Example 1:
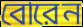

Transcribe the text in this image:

বোরেন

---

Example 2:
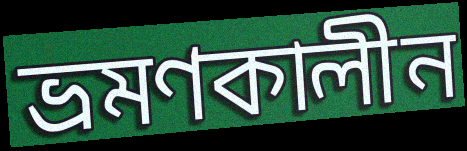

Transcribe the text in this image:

ভ্রমণকালীন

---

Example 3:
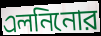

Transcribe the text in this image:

এলনিনোর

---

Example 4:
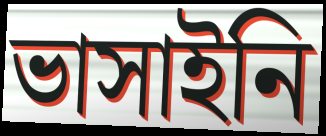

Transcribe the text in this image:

ভাসাইনি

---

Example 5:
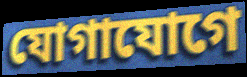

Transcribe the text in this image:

যোগাযোগে